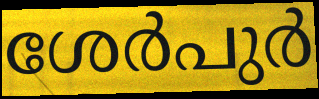
ശേർപുർ